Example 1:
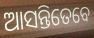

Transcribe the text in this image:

ଆସନ୍ତିତେବେ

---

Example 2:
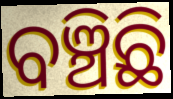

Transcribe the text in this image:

ବଞ୍ଚିଛି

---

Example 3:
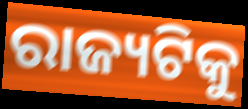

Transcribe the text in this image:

ରାଜ୍ୟଟିକୁ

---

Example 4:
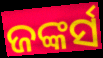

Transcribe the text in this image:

ଜଙ୍କର୍ସ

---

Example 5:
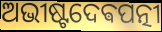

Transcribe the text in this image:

ଅଭୀଷ୍ଟଦେଵପତ୍ନୀ